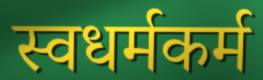
स्वधर्मकर्म